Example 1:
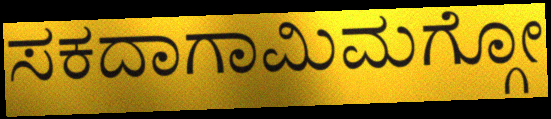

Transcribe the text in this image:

ಸಕದಾಗಾಮಿಮಗ್ಗೋ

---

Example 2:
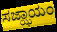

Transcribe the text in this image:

ಸಜ್ಝಾಯಂ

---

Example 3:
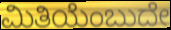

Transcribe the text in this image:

ಮಿತಿಯೆಂಬುದೇ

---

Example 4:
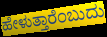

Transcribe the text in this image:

ಹೇಳುತ್ತಾರೆಂಬುದು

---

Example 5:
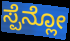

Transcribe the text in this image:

ಸ್ಪೆನ್ಲೋ